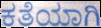
ಕತೆಯಾಗಿ